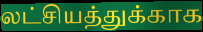
லட்சியத்துக்காக